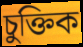
চুক্তিক